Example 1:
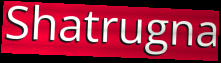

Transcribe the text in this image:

Shatrugna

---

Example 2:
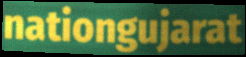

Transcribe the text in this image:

nationgujarat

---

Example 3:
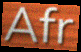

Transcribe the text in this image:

Afr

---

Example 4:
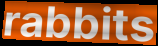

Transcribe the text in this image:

rabbits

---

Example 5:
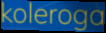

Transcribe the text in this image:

koleroga